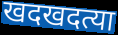
खदखदत्या